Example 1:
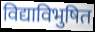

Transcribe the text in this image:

विद्याविभुषित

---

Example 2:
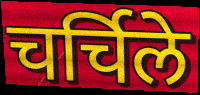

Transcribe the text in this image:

चर्चिले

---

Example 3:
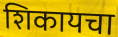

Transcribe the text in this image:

शिकायचा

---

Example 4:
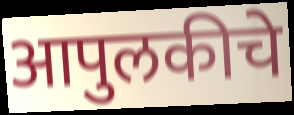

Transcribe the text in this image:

आपुलकीचे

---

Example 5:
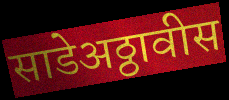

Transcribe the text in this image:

साडेअठ्ठावीस